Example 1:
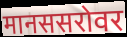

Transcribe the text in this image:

मानससरोवर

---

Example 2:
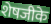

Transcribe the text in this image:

शेषजीके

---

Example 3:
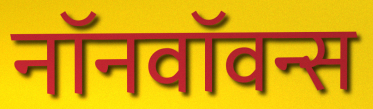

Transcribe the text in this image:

नॉनवॉवन्स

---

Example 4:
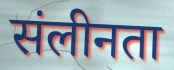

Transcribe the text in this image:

संलीनता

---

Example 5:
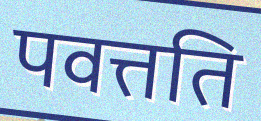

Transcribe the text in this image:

पवत्तति